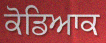
ਕੋਡਿਆਕ